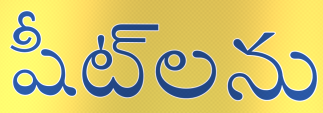
షీట్‌లను